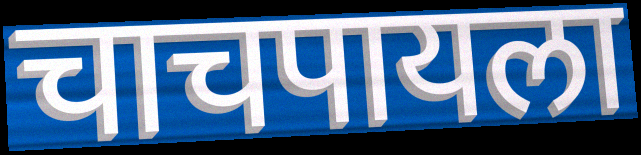
चाचपायला